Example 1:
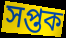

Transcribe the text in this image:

সপ্তক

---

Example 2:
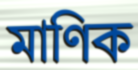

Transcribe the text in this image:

মাণিক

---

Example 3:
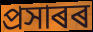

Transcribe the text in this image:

প্ৰসাৰৰ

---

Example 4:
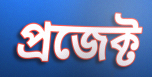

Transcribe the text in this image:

প্ৰজেক্ট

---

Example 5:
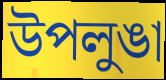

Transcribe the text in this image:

উপলুঙা